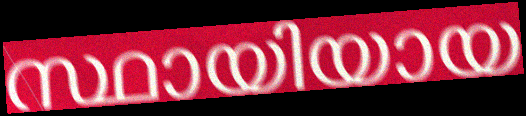
സ്ഥായിയായ